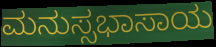
ಮನುಸ್ಸಭಾಸಾಯ